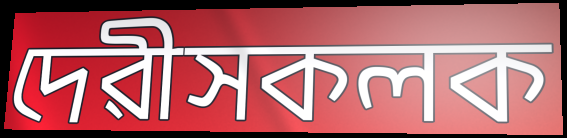
দেৱীসকলক